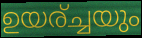
ഉയര്ച്ചയും